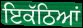
ਇਕੱਠਿਆਂ